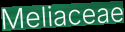
Meliaceae